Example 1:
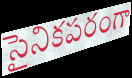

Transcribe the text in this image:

సైనికపరంగా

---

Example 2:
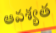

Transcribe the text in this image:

ఆవశ్యత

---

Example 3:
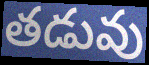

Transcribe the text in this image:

తడువు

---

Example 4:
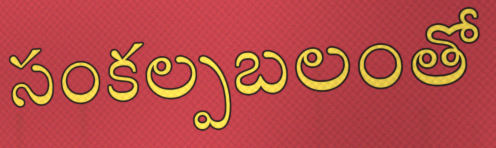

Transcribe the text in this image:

సంకల్పబలంతో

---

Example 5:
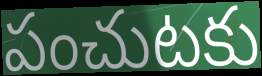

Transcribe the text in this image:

పంచుటకు